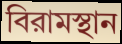
বিরামস্থান